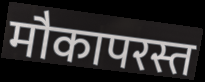
मौकापरस्त